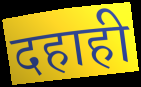
दहाही